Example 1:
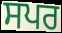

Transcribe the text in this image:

ਸਪਰ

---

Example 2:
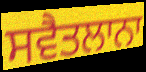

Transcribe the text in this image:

ਸਵੈਤਲਾਨਾ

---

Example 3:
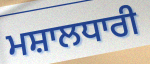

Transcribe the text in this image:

ਮਸ਼ਾਲਧਾਰੀ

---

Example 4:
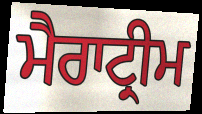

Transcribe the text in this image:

ਮੈਰਾਟ੍ਰੀਮ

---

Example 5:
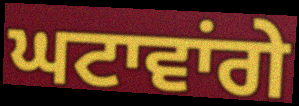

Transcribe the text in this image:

ਘਟਾਵਾਂਗੇ